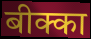
बीक्का